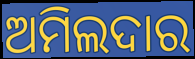
ଅମିଲଦାର